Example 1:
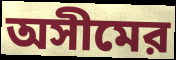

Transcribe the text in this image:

অসীমের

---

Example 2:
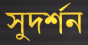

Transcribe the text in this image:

সুদর্শন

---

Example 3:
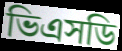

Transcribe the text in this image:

ভিএসডি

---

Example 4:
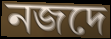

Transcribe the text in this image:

নজদে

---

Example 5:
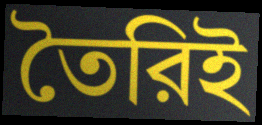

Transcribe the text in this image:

তৈরিই